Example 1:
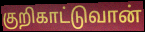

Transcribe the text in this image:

குறிகாட்டுவான்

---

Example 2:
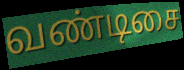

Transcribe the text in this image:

வண்டிசை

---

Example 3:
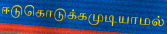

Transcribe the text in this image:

ஈடுகொடுக்கமுடியாமல்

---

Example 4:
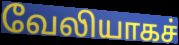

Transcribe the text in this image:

வேலியாகச்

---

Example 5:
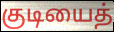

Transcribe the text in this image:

குடியைத்